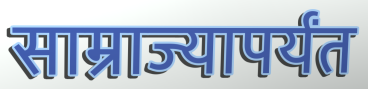
साम्राज्यापर्यंत